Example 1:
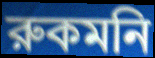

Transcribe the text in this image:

রুকমনি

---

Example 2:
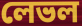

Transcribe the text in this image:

লেভল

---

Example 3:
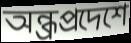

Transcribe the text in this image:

অন্ধ্রপ্রদেশে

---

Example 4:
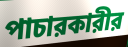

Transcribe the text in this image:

পাচারকারীর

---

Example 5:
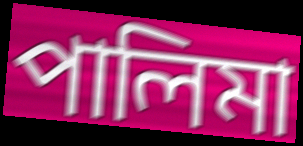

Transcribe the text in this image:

পালিমা